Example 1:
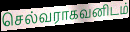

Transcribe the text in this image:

செல்வராகவனிடம்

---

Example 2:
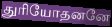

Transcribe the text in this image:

துரியோதனனே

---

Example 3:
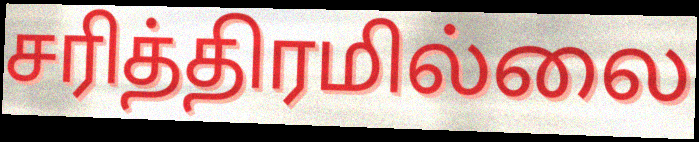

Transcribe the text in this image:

சரித்திரமில்லை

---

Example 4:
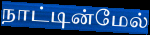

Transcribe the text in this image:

நாட்டின்மேல்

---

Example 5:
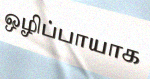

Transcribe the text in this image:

ஒழிப்பாயாக